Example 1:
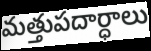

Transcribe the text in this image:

మత్తుపదార్ధాలు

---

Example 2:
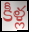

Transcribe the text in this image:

కీళ్ల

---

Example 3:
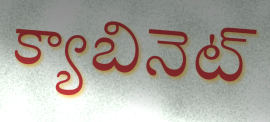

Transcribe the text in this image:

క్యాబినెట్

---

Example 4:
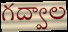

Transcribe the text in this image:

గద్వాల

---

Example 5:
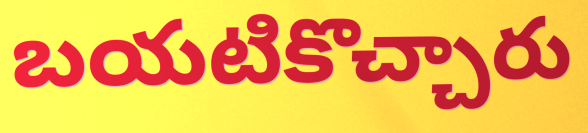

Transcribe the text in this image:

బయటికొచ్చారు